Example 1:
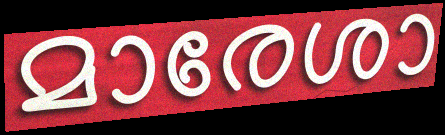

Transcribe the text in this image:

മാരേശാ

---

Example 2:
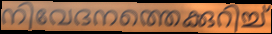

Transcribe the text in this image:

നിവേദനത്തെക്കുറിച്ച്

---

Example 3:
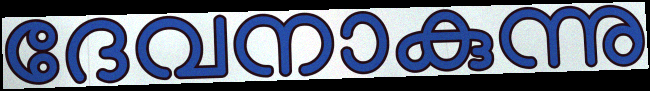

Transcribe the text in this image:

ദേവനാകുന്നു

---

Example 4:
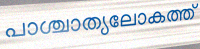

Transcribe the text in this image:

പാശ്ചാത്യലോകത്ത്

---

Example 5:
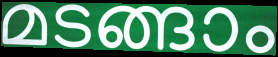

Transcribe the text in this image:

മടങ്ങാം